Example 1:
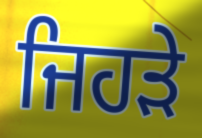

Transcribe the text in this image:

ਜਿਹਡ਼ੇ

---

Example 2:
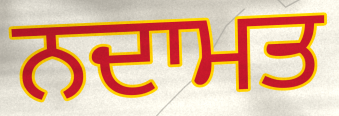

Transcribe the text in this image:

ਨਦਾਮਤ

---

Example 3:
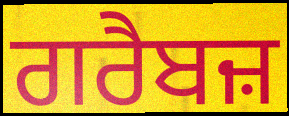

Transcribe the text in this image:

ਗਰੈਬਜ਼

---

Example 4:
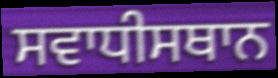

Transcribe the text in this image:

ਸਵਾਧੀਸਥਾਨ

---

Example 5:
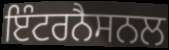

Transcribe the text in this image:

ਇੰਟਰਨੈਸਨਲ